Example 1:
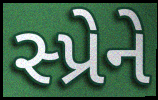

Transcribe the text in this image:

સ્પ્રેને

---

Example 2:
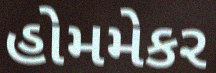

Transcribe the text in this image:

હોમમેકર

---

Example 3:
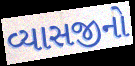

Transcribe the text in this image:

વ્યાસજીનો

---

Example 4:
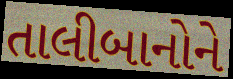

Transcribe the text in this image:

તાલીબાનોને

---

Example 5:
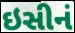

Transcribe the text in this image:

ઇસીનં